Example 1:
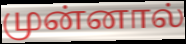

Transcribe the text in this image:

முன்னால்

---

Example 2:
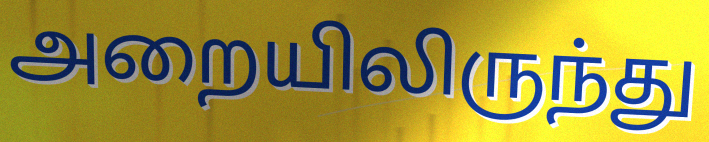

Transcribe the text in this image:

அறையிலிருந்து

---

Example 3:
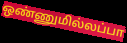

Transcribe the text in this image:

ஒண்ணுமில்லப்பா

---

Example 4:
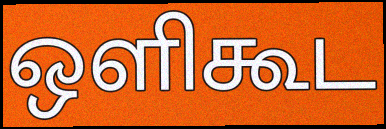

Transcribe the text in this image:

ஒளிகூட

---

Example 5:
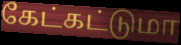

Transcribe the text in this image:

கேட்கட்டுமா